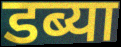
डब्या